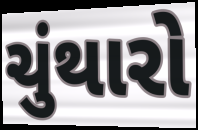
ચુંથારો